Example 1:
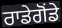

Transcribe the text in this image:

ਰਾਡੇਗੋਂਡੇ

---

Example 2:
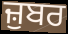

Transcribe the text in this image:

ਜ਼ੁਬਰ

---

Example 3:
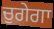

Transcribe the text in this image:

ਚੁਗੇਗਾ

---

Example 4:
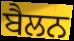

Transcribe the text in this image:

ਬੈਲਨ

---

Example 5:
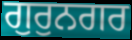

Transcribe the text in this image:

ਗੁਰੁਨਗਰ